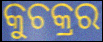
କୁଚକ୍ରର